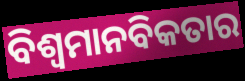
ବିଶ୍ଵମାନବିକତାର